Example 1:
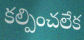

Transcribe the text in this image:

కల్పించలేక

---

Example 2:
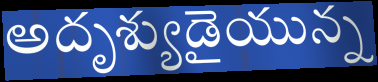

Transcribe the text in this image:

అదృశ్యుడైయున్న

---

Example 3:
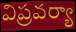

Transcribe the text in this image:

విప్రవర్యా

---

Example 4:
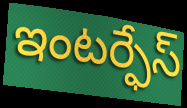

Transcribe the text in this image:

ఇంటర్ఫేస్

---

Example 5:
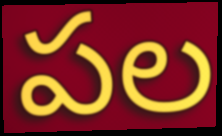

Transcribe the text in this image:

పల